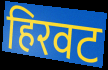
हिरवट